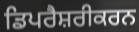
ਡਿਪਰੈਸ਼ਰੀਕਰਨ